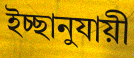
ইচ্ছানুযায়ী